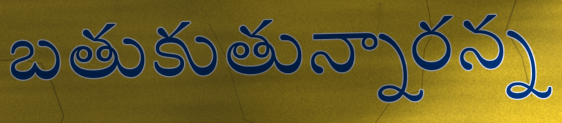
బతుకుతున్నారన్న